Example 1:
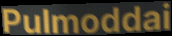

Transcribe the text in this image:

Pulmoddai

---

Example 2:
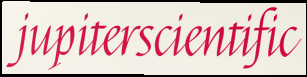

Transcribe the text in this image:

jupiterscientific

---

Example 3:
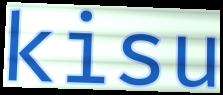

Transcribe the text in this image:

kisu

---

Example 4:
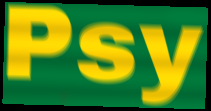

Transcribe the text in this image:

Psy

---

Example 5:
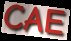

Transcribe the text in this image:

CAE